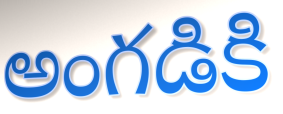
అంగడికి